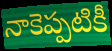
నాకెప్పటికీ